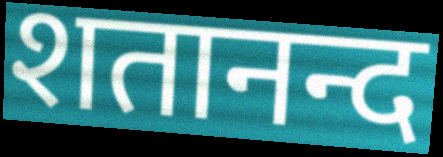
शतानन्द